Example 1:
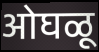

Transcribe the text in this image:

ओघळू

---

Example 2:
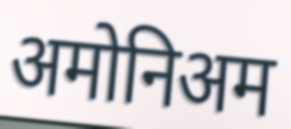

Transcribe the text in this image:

अमोनिअम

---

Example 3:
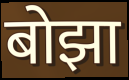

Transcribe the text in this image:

बोझा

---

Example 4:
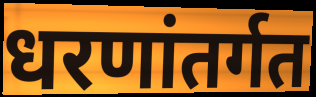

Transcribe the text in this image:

धरणांतर्गत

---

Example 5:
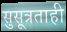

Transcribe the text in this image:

सुसूत्रताही